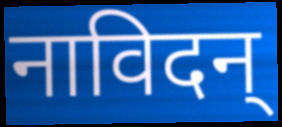
नाविदन्